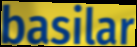
basilar